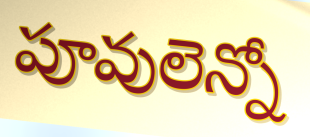
పూవులెన్నో